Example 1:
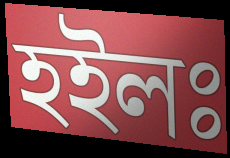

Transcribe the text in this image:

হইলঃ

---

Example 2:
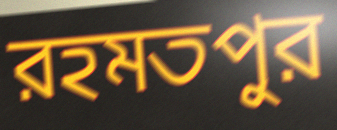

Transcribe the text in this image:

রহমতপুর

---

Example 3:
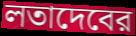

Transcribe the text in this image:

লতাদেবের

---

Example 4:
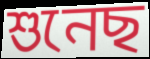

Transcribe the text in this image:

শুনেছ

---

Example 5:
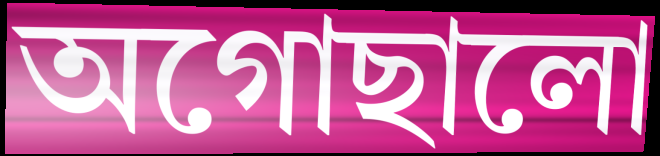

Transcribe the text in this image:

অগোছালো